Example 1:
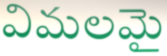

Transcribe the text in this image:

విమలమై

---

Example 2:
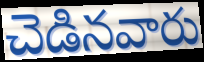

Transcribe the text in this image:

చెడినవారు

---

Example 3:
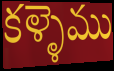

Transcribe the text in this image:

కళ్ళెము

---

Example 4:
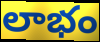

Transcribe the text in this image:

లాభం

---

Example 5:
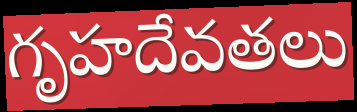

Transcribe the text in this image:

గృహదేవతలు